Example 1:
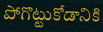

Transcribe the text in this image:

పోగొట్టుకోడానికి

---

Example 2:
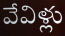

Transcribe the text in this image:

వేవిళ్లు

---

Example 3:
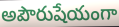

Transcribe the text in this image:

అపౌరుషేయంగా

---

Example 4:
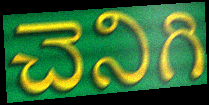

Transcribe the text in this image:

చెనిగి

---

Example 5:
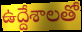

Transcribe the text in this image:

ఉద్దేశాలతో